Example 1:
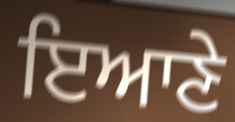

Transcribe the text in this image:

ਇਆਣੇ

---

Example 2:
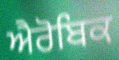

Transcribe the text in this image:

ਐਰੋਬਿਕ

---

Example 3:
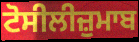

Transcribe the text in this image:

ਟੋਸੀਲੀਜ਼ੁਮਾਬ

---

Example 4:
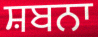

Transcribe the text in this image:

ਸ਼ਬਨਾ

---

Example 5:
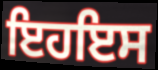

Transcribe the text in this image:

ਇਹਇਸ